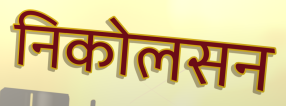
निकोलसन